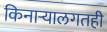
किनाऱ्यालगतही